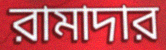
রামাদার